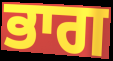
ਭਾਗ